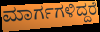
ಮಾರ್ಗಗಳಿದ್ದರೆ